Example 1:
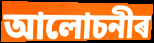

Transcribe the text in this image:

আলোচনীৰ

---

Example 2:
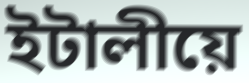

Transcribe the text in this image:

ইটালীয়ে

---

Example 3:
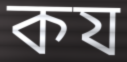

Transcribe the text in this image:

কয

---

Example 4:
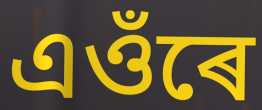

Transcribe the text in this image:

এওঁৰে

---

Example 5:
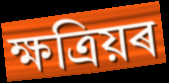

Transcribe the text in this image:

ক্ষত্ৰিয়ৰ